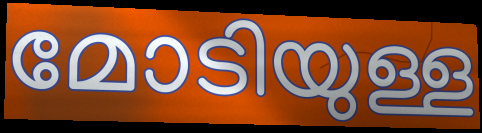
മോടിയുള്ള